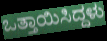
ಒತ್ತಾಯಿಸಿದ್ದಳು